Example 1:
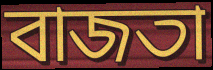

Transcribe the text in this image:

বাজতা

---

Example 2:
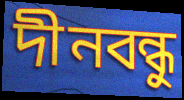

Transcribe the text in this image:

দীনবন্ধু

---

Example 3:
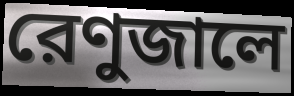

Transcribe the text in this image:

রেণুজালে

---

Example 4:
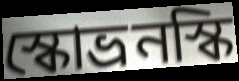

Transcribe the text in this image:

স্কোভ্রনস্কি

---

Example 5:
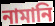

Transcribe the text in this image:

নামানি